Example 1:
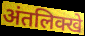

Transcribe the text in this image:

अंतलिक्खे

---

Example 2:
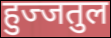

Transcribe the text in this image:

हुज्जतुल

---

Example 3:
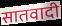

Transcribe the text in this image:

सातवादी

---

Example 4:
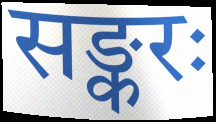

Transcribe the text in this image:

सङ्करः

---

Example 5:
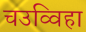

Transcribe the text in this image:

चउव्विहा